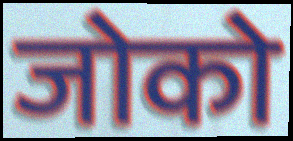
जोको